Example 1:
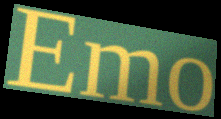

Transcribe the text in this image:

Emo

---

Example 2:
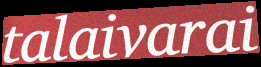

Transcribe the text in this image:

talaivarai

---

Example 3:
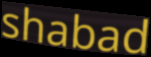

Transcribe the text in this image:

shabad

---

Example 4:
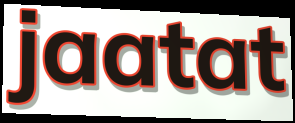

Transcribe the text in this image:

jaatat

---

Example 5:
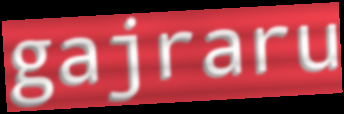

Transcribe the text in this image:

gajraru